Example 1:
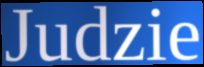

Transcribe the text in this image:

Judzie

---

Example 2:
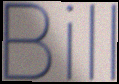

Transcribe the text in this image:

Bill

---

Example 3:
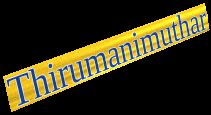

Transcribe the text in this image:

Thirumanimuthar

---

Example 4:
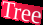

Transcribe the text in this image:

Tree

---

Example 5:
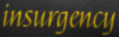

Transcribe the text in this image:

insurgency